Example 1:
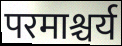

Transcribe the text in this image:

परमाश्चर्य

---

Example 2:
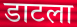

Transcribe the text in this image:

डाटला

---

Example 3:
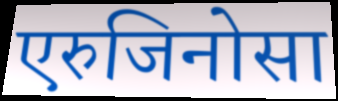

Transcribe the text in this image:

एरुजिनोसा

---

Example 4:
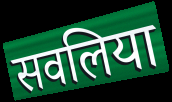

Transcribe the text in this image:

सवलिया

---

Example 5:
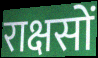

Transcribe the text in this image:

राक्षसों